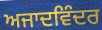
ਅਜਾਦਵਿੰਦਰ